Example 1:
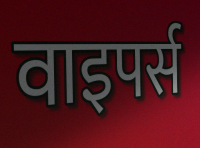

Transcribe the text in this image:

वाइपर्स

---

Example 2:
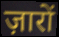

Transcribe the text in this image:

ज़ारों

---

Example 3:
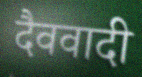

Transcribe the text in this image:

दैववादी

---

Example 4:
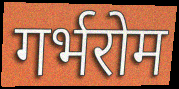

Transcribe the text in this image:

गर्भरोम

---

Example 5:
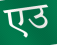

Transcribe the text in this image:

एउ